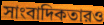
সাংবাদিকতারও